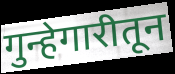
गुन्हेगारीतून